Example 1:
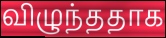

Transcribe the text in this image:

விழுந்ததாக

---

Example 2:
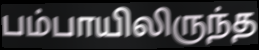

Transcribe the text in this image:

பம்பாயிலிருந்த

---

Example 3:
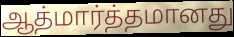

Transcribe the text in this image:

ஆத்மார்த்தமானது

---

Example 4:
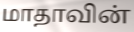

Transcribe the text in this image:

மாதாவின்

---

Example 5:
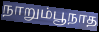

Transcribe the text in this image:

நாறும்பூநாத